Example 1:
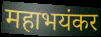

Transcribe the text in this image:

महाभयंकर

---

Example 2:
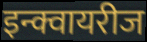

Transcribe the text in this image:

इन्क्वायरीज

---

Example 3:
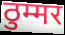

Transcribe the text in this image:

ठुम्मर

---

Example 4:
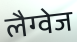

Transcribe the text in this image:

लैग्वेज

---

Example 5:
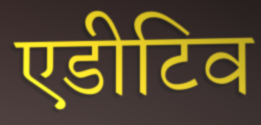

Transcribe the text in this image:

एडीटिव